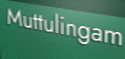
Muttulingam